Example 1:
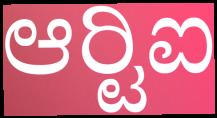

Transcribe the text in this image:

ಆರ್‍ಟಿಐ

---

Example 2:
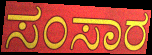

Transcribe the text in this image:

ಸಂಸಾರ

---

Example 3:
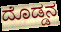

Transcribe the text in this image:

ದೊಡ್ಡನ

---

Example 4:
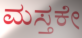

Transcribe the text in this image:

ಮಸ್ತಕೇ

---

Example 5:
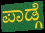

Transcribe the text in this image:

ಪಾಡ್ಗೆ